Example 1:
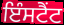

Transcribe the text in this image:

ਇੰਸਟੈਂਟ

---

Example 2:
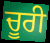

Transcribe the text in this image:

ਚੂਰੀ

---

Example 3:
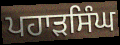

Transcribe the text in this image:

ਪਹਾੜਸਿੰਘ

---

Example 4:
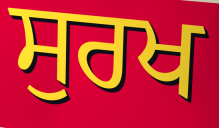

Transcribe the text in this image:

ਸੁਰਖ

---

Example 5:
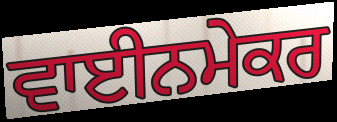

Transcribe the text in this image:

ਵਾਈਨਮੇਕਰ